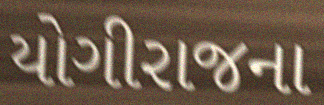
યોગીરાજના